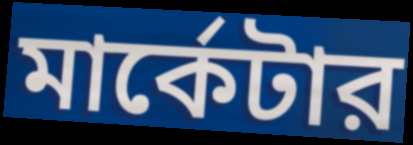
মার্কেটার